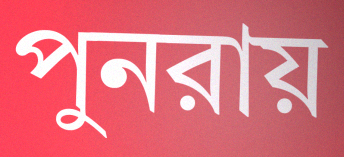
পুনরায়